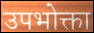
उपभोक्ता